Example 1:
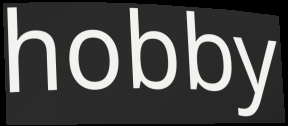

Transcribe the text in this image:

hobby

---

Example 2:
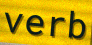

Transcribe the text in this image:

verb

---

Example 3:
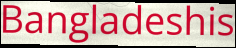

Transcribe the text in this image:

Bangladeshis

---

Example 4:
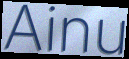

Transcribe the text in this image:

Ainu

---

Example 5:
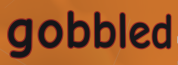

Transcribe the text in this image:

gobbled